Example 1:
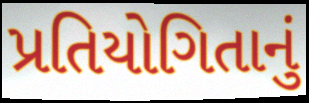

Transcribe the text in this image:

પ્રતિયોગિતાનું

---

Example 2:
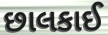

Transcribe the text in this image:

છાલકાઈ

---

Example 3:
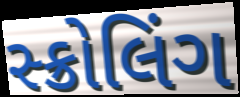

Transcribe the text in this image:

સ્ક્રોલિંગ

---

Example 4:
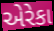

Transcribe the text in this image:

એરેકા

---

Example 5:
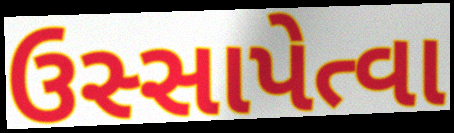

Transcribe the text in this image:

ઉસ્સાપેત્વા